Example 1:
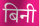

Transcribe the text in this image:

बिनी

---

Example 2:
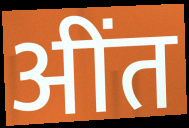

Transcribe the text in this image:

अींत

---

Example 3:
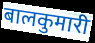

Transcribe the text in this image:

बालकुमारी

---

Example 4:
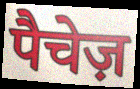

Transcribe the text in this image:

पैचेज़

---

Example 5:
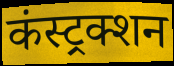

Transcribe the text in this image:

कंस्ट्रक्शन